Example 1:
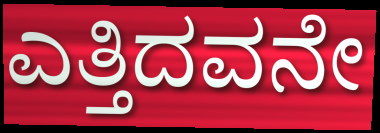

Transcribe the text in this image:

ಎತ್ತಿದವನೇ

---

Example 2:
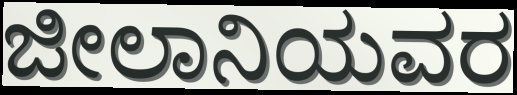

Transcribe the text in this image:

ಜೀಲಾನಿಯವರ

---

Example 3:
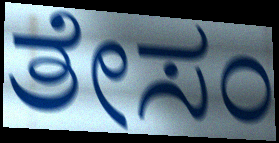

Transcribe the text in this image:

ತೇಸಂ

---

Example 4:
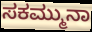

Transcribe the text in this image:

ಸಕಮ್ಮುನಾ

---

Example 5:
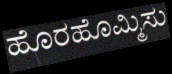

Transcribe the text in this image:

ಹೊರಹೊಮ್ಮಿಸು